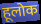
हूलोक